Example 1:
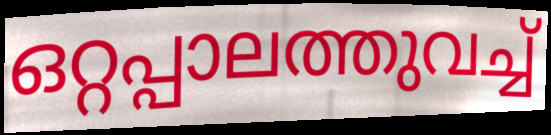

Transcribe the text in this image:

ഒറ്റപ്പാലത്തുവച്ച്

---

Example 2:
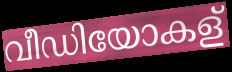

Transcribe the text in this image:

വീഡിയോകള്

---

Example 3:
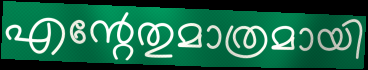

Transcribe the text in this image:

എന്റേതുമാത്രമായി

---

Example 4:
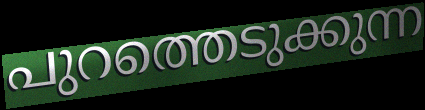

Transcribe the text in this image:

പുറത്തെടുക്കുന്ന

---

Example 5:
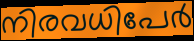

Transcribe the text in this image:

നിരവധിപേർ